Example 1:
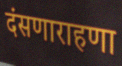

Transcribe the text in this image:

दंसणाराहणा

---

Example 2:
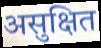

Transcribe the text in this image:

असुक्षित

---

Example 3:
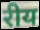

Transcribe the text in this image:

रीय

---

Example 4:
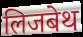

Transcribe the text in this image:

लिजबेथ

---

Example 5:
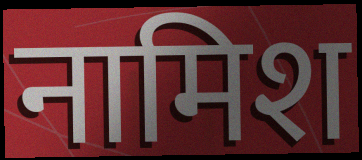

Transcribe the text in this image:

नामिश